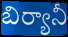
బిర్యానీ